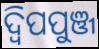
ଦ୍ଵିପପୁଞ୍ଜ